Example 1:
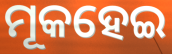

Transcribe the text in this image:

ମୂକହେଇ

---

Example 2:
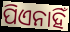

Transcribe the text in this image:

ପିଏନାହିଁ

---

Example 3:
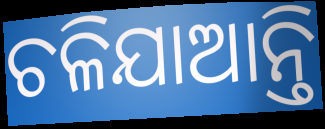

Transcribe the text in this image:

ଚଳିଯାଆନ୍ତି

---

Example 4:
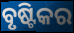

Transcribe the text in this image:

ବୃଷ୍ଟିକର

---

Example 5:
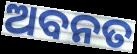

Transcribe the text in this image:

ଅବନତ